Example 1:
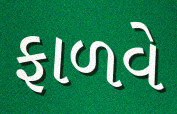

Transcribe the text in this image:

ફાળવે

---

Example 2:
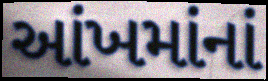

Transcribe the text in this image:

આંખમાંનાં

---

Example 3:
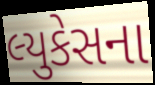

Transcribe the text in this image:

લ્યુકેસના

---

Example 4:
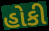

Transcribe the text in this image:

હોકી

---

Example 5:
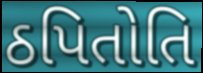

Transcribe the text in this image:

ઠપિતોતિ